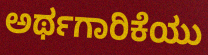
ಅರ್ಥಗಾರಿಕೆಯು